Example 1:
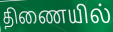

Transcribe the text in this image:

திணையில்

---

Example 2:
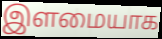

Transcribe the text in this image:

இளமையாக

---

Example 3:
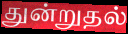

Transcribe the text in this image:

துன்றுதல்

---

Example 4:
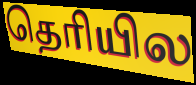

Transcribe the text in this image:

தெரியில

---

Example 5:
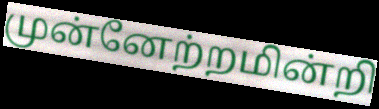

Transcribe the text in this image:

முன்னேற்றமின்றி